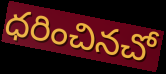
ధరించినచో